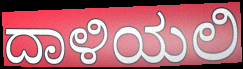
ದಾಳಿಯಲಿ